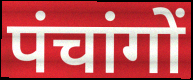
पंचांगों